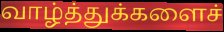
வாழ்த்துக்களைச்